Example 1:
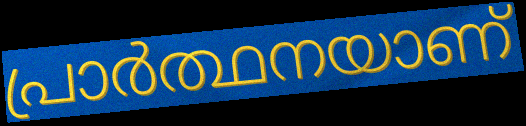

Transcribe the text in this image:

പ്രാർത്ഥനയാണ്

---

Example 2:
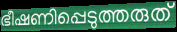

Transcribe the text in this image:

ഭീഷണിപ്പെടുത്തരുത്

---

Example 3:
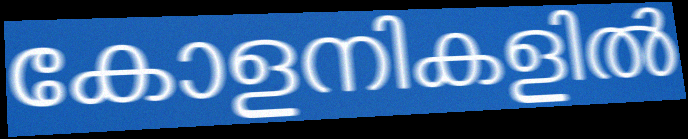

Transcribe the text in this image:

കോളനികളിൽ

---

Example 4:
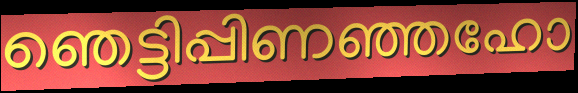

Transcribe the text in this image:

ഞെട്ടിപ്പിണഞ്ഞഹോ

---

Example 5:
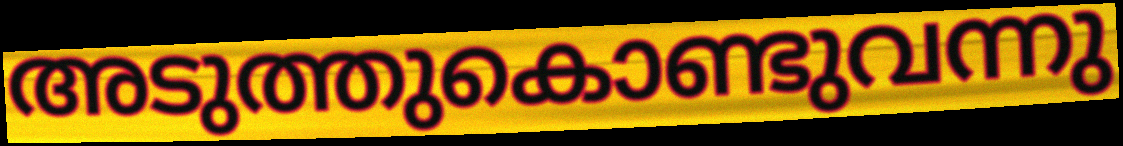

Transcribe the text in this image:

അടുത്തുകൊണ്ടുവന്നു